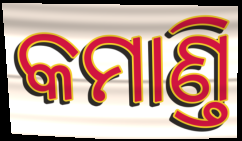
କମାଣ୍ତି